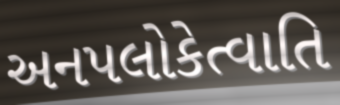
અનપલોકેત્વાતિ